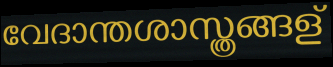
വേദാന്തശാസ്ത്രങ്ങള്